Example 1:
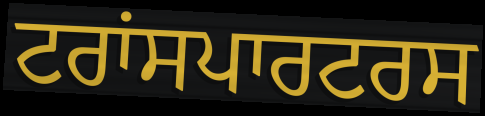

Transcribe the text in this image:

ਟਰਾਂਸਪਾਰਟਰਸ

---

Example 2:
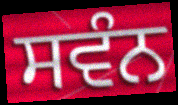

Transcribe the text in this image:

ਸਵੰਨ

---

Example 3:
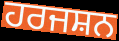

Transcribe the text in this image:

ਹਰਜਸ਼ਨ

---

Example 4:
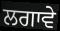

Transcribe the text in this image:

ਲਗਾਵੇ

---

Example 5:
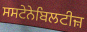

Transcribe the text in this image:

ਸਸਟੇਨੇਬਿਲਟੀਜ਼